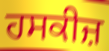
ਹਸਕੀਜ਼